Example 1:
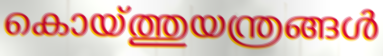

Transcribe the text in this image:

കൊയ്ത്തുയന്ത്രങ്ങൾ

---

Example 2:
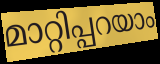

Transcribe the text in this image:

മാറ്റിപ്പറയാം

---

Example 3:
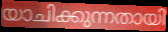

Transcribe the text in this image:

യാചിക്കുന്നതായി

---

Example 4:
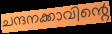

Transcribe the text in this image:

ചന്ദനക്കാവിന്റെ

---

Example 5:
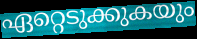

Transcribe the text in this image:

ഏറ്റെടുക്കുകയും